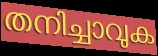
തനിച്ചാവുക